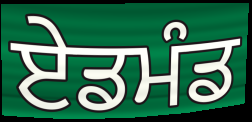
ਏਡਮੰਡ